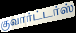
குவார்ட்டர்ஸ்